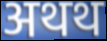
अथथ